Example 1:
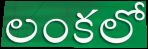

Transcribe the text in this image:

లంకలో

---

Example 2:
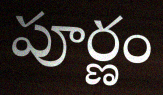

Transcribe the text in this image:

పూర్ణం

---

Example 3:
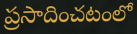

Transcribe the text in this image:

ప్రసాదించటంలో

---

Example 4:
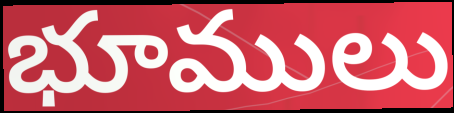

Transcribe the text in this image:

భూములు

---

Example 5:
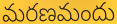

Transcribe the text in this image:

మరణమందు